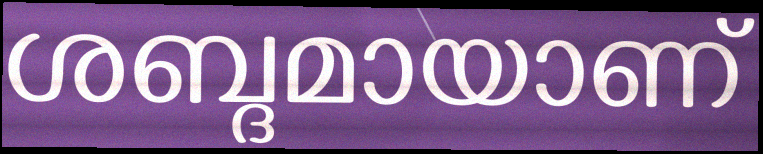
ശബ്ദമായാണ്